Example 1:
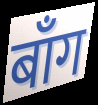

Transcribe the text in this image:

बाँग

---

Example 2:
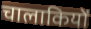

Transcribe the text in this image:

चालाकियों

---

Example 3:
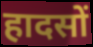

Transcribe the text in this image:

हादसों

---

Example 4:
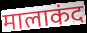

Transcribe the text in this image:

मालाकंद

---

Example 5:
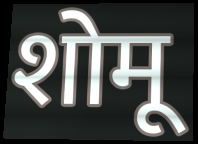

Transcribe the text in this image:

शोमू